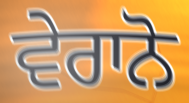
ਵੇਰਾਨੋ